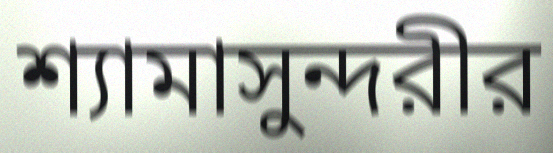
শ্যামাসুন্দরীর